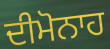
ਦੀਮੋਨਾਹ